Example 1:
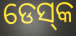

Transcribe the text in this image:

ଡେସ୍‌କ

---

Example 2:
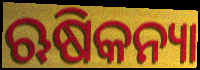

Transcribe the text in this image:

ଋଷିକନ୍ୟା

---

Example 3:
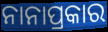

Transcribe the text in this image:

ନାନାପ୍ରକାର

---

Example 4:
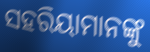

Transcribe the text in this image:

ସହରିୟାମାନଙ୍କୁ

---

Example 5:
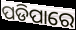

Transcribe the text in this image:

ପଡିପାରେ